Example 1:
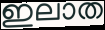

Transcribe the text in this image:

ഇലാത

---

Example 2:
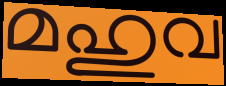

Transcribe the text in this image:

മഹുവ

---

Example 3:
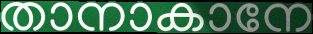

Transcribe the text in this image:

താനാകാനേ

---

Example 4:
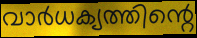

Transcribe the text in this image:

വാർധക്യത്തിന്റെ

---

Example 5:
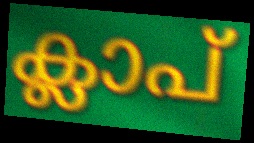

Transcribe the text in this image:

ക്ലാപ്